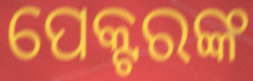
ପେକ୍ଟରଙ୍କ